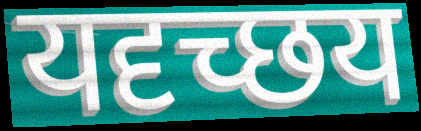
यदृच्छय